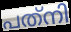
പത്‌നി